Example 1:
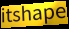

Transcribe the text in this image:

itshape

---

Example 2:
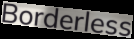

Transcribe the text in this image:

Borderless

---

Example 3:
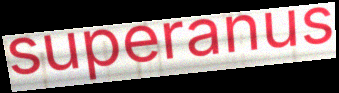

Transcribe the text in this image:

superanus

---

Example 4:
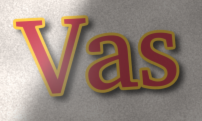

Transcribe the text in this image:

Vas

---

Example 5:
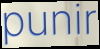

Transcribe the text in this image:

punir